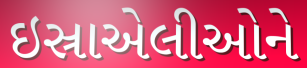
ઇસ્રાએલીઓને